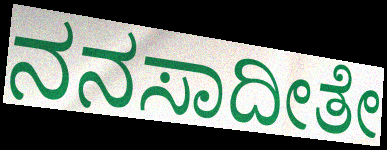
ನನಸಾದೀತೇ